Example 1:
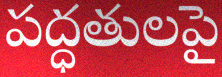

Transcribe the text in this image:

పద్ధతులపై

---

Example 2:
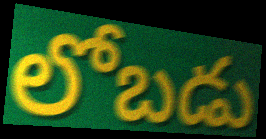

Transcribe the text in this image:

లోబడు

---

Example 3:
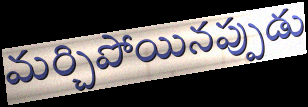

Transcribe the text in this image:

మర్చిపోయినప్పుడు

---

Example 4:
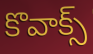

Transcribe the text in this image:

కొవాక్స్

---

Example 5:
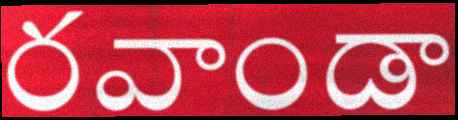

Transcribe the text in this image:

రవాండా